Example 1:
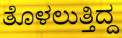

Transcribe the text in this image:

ತೊಳಲುತ್ತಿದ್ದ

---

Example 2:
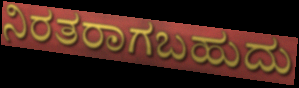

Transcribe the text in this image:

ನಿರತರಾಗಬಹುದು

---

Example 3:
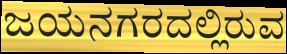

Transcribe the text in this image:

ಜಯನಗರದಲ್ಲಿರುವ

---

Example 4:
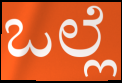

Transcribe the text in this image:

ಒಲ್ಲೆ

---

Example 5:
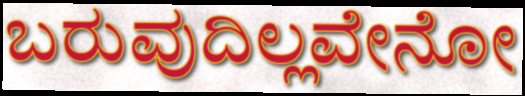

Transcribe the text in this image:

ಬರುವುದಿಲ್ಲವೇನೋ